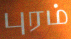
புரம்